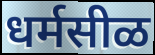
धर्मसीळ